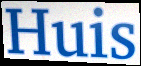
Huis